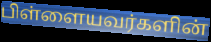
பிள்ளையவர்களின்